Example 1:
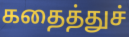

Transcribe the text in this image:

கதைத்துச்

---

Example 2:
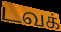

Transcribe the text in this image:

டவக்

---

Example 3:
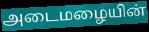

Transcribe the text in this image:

அடைமழையின்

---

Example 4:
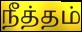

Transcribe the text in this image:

நீத்தம்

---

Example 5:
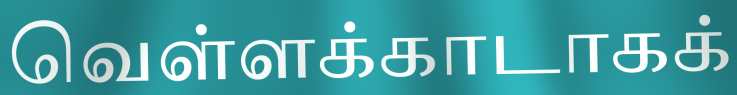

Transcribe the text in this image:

வெள்ளக்காடாகக்